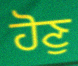
ਹੋਣੁ